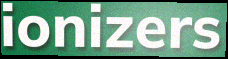
ionizers